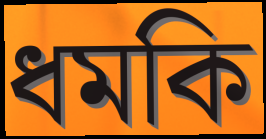
ধমকি